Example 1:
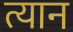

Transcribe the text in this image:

त्यान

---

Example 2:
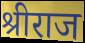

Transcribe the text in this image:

श्रीराज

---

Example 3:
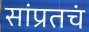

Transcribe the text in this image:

सांप्रतचं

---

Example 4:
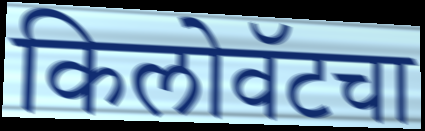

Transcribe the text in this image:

किलोवॅटचा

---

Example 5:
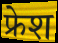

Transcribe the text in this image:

फ्रेश